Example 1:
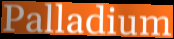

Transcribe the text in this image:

Palladium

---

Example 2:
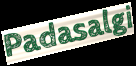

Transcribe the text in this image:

Padasalgi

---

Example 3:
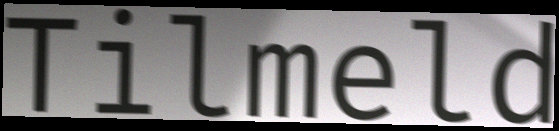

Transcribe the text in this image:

Tilmeld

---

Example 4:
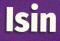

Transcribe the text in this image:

Isin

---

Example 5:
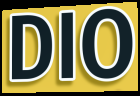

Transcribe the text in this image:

DIO